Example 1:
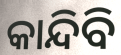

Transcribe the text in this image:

କାନ୍ଦିବି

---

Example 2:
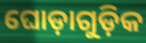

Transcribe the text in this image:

ଘୋଡ଼ାଗୁଡ଼ିକ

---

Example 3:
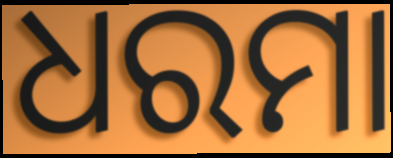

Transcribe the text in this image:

ଧରମା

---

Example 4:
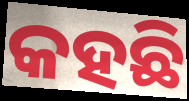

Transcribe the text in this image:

କହଛି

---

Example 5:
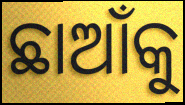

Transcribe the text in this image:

ଛାଆଁକୁ